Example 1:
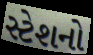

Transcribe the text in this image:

સ્ટેશનો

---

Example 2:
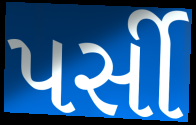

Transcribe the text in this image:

પર્સી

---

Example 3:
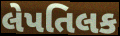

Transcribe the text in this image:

લેપતિલક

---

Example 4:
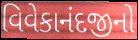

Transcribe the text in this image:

વિવેકાનંદજીનો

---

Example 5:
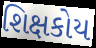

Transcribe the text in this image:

શિક્ષકોય